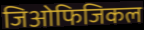
जिओफिजिकल